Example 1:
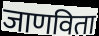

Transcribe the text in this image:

जाणविता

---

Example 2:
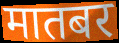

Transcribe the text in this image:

मातबर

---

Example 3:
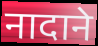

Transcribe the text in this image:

नादाने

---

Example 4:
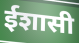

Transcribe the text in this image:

ईशासी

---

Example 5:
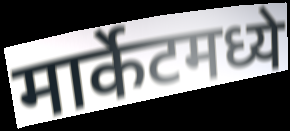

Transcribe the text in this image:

मार्केटमध्ये